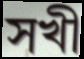
সখী